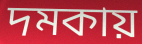
দমকায়